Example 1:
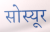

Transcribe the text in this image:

सोस्यूर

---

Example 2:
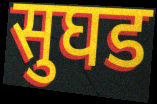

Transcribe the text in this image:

सुघड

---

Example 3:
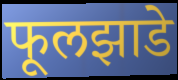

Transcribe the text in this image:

फूलझाडे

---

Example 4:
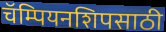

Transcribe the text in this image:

चॅम्पियनशिपसाठी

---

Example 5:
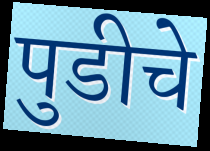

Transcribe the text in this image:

पुडीचे